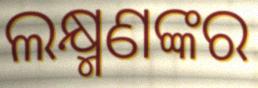
ଲକ୍ଷ୍ମଣଙ୍କର